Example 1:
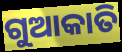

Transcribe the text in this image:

ଗୁଆକାତି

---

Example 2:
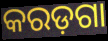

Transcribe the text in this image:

କରଡ଼ଗା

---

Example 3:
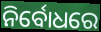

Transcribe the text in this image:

ନିର୍ବୋଧରେ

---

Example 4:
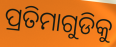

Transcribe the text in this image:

ପ୍ରତିମାଗୁଡିକୁ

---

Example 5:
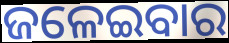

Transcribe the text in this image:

ଜଳେଇବାର